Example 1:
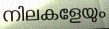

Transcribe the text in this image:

നിലകളേയും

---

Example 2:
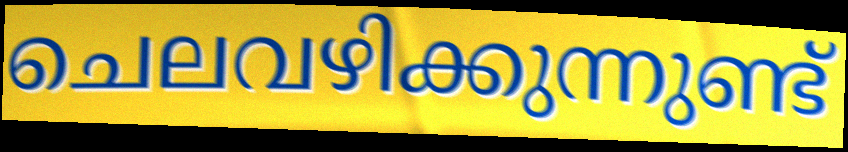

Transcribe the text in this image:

ചെലവഴിക്കുന്നുണ്ട്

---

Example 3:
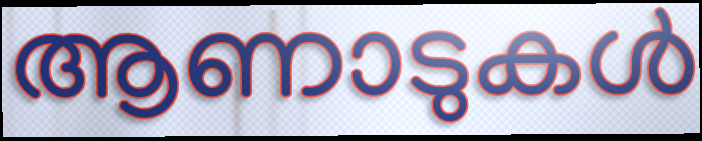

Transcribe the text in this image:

ആണാടുകൾ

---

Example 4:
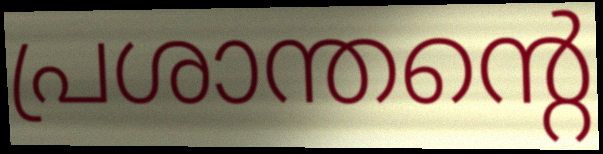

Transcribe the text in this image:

പ്രശാന്തന്റെ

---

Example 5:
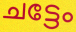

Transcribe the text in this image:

ചട്ടേം